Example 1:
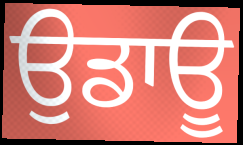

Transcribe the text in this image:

ਉਡਾਊ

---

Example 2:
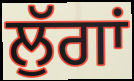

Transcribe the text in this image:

ਲੁੱਗਾਂ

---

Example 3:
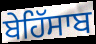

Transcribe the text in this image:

ਬੇਹਿੱਸਾਬ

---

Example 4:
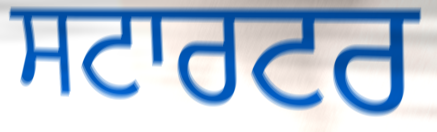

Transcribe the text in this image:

ਸਟਾਰਟਰ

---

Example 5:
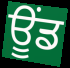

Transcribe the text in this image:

ਊਂਡ